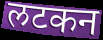
लटकन